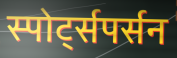
स्पोर्ट्सपर्सन